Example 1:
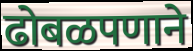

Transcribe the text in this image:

ढोबळपणाने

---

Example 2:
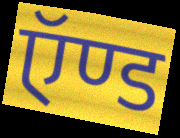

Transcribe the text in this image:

ऍण्ड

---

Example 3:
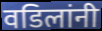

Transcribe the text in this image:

वडिलांनी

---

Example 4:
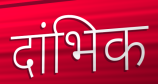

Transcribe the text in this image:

दांभिक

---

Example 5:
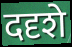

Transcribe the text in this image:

ददृशे